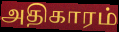
அதிகாரம்